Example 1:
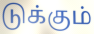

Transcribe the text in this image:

டுக்கும்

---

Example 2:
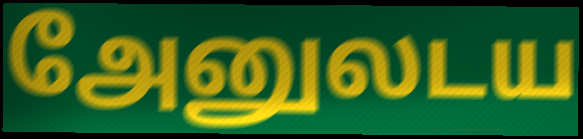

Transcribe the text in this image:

அேனுலடய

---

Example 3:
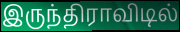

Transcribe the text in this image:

இருந்திராவிடில்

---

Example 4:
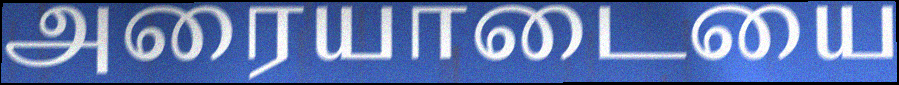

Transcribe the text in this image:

அரையாடையை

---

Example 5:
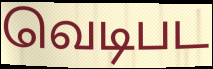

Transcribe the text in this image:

வெடிபட